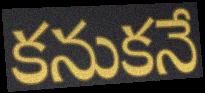
కనుకనే